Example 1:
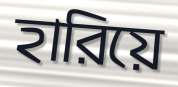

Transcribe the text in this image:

হারিয়ে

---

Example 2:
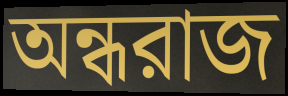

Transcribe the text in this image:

অন্ধরাজ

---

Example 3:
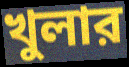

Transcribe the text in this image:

খুলার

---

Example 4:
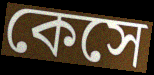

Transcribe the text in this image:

কেসে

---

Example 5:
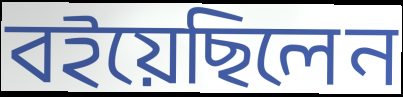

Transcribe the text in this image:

বইয়েছিলেন